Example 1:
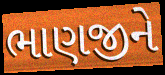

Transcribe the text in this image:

ભાણજીને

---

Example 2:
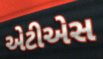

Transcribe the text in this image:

એટીએસ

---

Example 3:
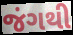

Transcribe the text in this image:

જંગથી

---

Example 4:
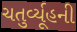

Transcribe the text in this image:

ચતુર્વ્યૂહની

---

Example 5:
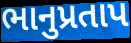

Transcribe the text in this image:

ભાનુપ્રતાપ